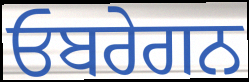
ਓਬਰੇਗਨ